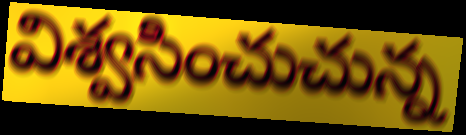
విశ్వసించుచున్న